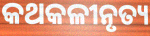
କଥକଳୀନୃତ୍ୟ